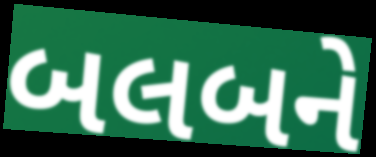
બલબને